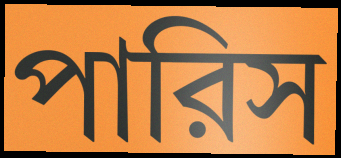
পারিস